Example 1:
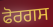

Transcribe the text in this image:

ਫੋਰਗਸ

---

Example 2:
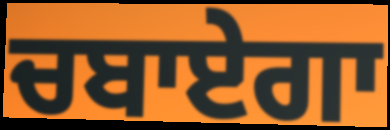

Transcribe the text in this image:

ਚਬਾਏਗਾ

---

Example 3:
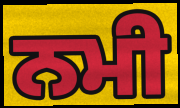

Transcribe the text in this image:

ਨਮੀ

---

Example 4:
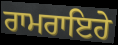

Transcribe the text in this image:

ਰਾਮਰਾਇਹੇ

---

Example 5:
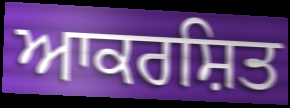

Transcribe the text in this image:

ਆਕਰਸ਼ਿਤ